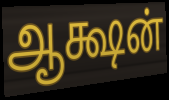
ஆக்ஷன்